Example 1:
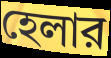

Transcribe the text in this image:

হেলার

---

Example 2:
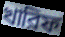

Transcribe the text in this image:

খারিফ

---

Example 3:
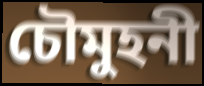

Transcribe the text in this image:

চৌমুহনী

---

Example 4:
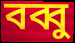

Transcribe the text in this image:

বব্বু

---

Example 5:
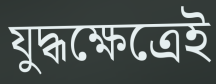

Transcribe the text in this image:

যুদ্ধক্ষেত্রেই